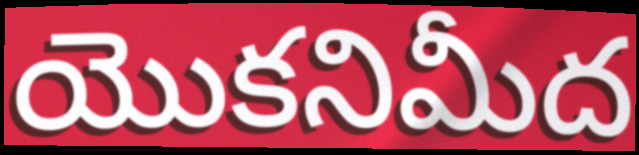
యొకనిమీద